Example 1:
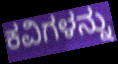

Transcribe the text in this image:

ಕವಿಗಳನ್ನು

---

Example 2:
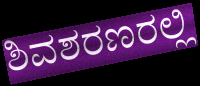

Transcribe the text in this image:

ಶಿವಶರಣರಲ್ಲಿ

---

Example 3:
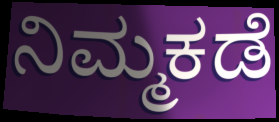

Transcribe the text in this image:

ನಿಮ್ಮಕಡೆ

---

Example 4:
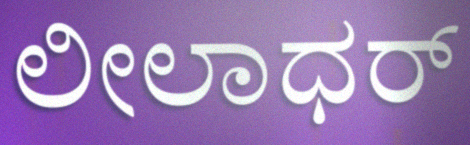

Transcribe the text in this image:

ಲೀಲಾಧರ್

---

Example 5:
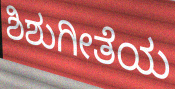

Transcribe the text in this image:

ಶಿಶುಗೀತೆಯ